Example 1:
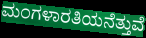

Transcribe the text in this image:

ಮಂಗಳಾರತಿಯನೆತ್ತುವೆ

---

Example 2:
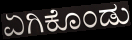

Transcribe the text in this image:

ಏಗಿಕೊಂಡು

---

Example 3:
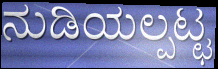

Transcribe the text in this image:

ನುಡಿಯಲ್ಪಟ್ಟ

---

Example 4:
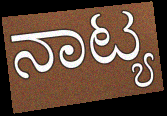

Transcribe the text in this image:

ನಾಟ್ಯ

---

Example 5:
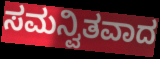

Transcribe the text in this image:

ಸಮನ್ವಿತವಾದ